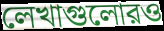
লেখাগুলোরও